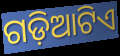
ଗଡ଼ିଆଟିଏ